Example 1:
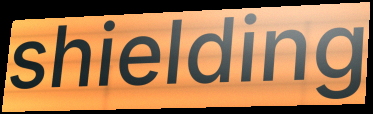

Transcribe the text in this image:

shielding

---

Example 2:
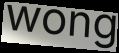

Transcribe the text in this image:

wong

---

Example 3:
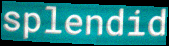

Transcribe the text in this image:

splendid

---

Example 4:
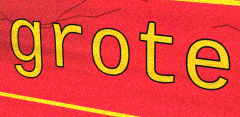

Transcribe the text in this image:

grote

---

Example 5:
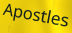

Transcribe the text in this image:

Apostles